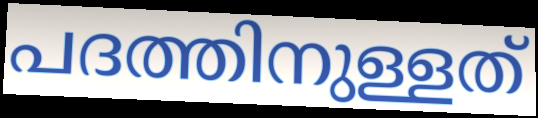
പദത്തിനുള്ളത്